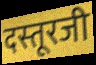
दस्तूरजी